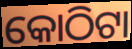
କୋଠିଟା